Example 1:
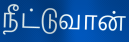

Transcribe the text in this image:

நீட்டுவான்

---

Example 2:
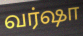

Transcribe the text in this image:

வர்ஷா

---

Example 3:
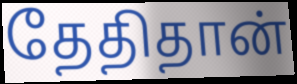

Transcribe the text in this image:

தேதிதான்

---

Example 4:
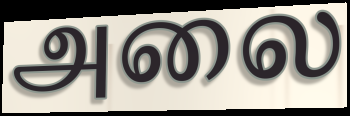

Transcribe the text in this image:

அலை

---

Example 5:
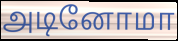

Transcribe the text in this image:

அடினோமா